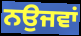
ਨਉਜਵਾਂ